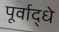
पूर्वाद्धे